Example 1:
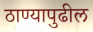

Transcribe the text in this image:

ठाण्यापुढील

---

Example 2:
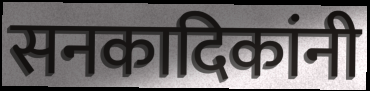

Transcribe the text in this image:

सनकादिकांनी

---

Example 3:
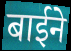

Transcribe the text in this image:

बाईने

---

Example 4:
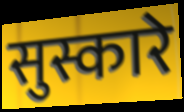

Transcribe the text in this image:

सुस्कारे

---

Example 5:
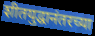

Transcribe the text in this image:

शीतयुद्धानंतरच्या